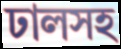
ঢালসহ